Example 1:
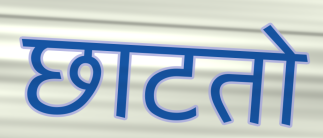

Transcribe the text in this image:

छाटतो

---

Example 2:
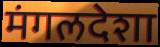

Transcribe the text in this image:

मंगलदेशा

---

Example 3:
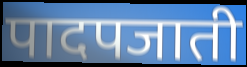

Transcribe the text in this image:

पादपजाती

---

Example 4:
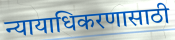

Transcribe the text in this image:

न्यायाधिकरणासाठी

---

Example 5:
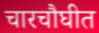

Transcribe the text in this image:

चारचौघीत